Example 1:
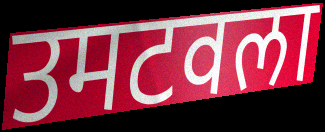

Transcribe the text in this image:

उमटवला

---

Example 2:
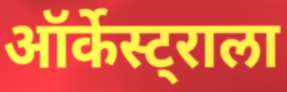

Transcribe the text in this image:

ऑर्केस्ट्राला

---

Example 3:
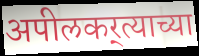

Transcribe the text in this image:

अपीलकर्त्याच्या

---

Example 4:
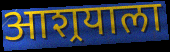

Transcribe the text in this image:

आश्रयाला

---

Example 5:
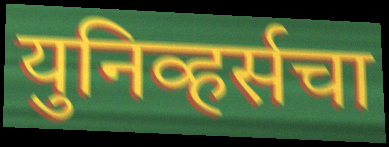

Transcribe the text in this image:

युनिव्हर्सचा